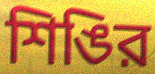
শিঙির